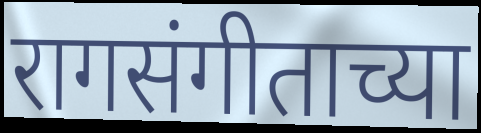
रागसंगीताच्या